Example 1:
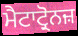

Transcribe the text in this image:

ਮੈਟਾਟ੍ਰੋਨਜ਼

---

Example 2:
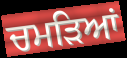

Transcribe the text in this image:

ਚਮੜਿਆਂ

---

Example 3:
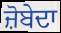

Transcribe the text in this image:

ਜ਼ੋਬੇਦਾ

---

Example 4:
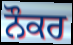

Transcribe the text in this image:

ਨੌਕਰ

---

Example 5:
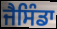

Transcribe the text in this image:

ਜੈਸਿੰਡਾ